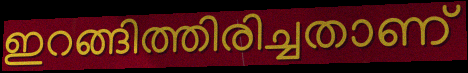
ഇറങ്ങിത്തിരിച്ചതാണ്